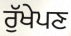
ਰੁੱਖੇਪਣ